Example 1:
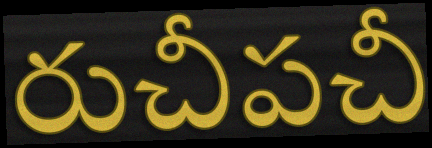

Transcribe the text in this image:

రుచీపచీ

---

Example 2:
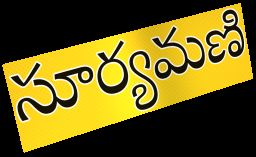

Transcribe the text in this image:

సూర్యమణి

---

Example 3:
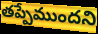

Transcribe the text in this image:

తప్పేముందని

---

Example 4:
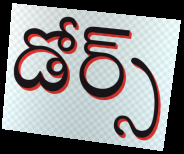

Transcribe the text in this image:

డోర్స్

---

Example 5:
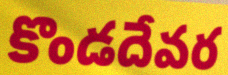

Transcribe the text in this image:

కొండదేవర